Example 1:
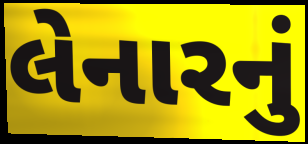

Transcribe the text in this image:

લેનારનું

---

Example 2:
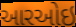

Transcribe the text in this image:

આરઓઇ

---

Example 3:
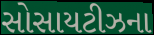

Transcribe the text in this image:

સોસાયટીઝના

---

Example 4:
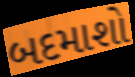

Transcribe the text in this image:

બદમાશો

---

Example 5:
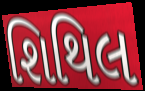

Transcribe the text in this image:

શિથિલ